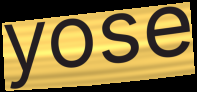
yose